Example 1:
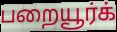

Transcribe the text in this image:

பறையூர்க்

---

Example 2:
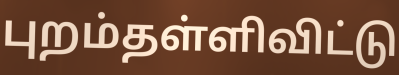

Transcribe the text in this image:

புறம்தள்ளிவிட்டு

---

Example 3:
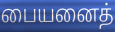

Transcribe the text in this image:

பையனைத்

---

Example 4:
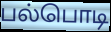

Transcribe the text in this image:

பல்பொடி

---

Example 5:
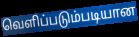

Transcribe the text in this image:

வெளிப்படும்படியான